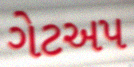
ગેટઅપ